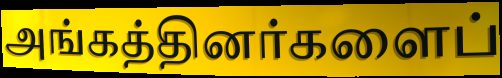
அங்கத்தினர்களைப்